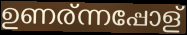
ഉണര്ന്നപ്പോള്